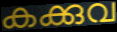
കക്കുവ